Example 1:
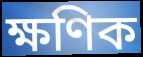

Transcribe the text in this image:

ক্ষণিক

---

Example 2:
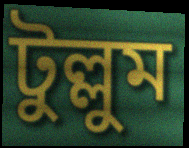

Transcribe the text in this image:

টুল্লুম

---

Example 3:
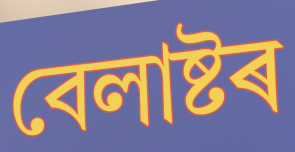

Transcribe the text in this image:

বেলাষ্টৰ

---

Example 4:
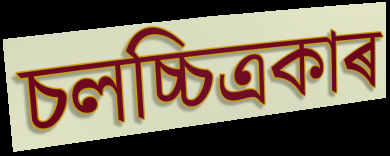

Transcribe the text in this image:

চলচ্চিত্ৰকাৰ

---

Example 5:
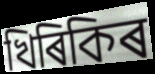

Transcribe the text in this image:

খিৰিকিৰ